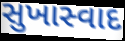
સુખાસ્વાદ